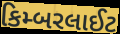
કિમ્બરલાઈટ